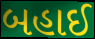
બહાઈ